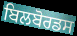
ਬਿਲਬੋਰਡਸ